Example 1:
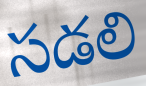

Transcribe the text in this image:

సడలి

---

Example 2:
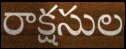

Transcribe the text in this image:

రాక్షసుల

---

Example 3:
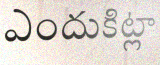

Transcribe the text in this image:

ఎందుకిట్లా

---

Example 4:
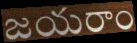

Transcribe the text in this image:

జయరాం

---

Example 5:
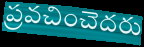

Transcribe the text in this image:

ప్రవచించెదరు